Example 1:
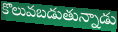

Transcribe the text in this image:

కొలువబడుతున్నాడు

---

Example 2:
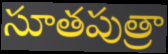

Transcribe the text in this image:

సూతపుత్రా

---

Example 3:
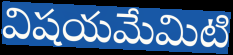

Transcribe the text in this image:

విషయమేమిటి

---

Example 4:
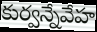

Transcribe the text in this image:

కుర్వన్నేవేహ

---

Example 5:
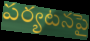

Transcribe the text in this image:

పర్యటనపై